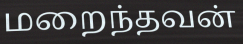
மறைந்தவன்